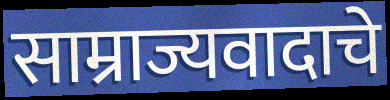
साम्राज्यवादाचे